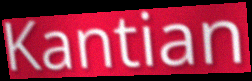
Kantian